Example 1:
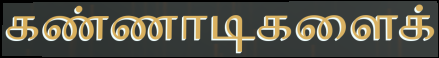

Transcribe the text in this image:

கண்ணாடிகளைக்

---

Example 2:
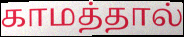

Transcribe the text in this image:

காமத்தால்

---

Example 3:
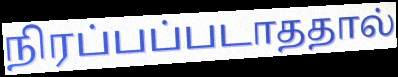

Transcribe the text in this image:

நிரப்பப்படாததால்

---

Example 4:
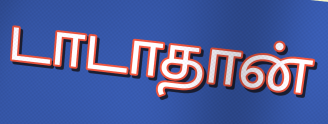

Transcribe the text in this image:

டாடாதான்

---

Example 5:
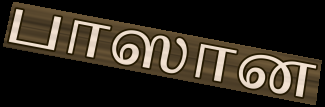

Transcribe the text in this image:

பாஸான